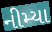
નીમ્યા